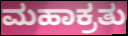
ಮಹಾಕ್ರತು